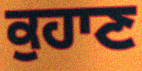
ਕੁਹਾਣ